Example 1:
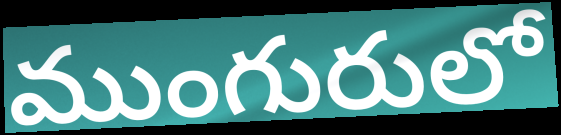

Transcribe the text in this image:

ముంగురులో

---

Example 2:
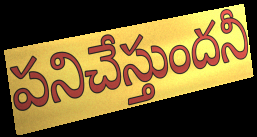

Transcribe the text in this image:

పనిచేస్తుందనీ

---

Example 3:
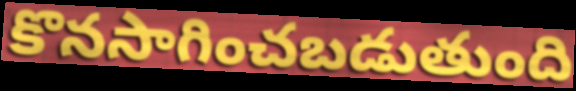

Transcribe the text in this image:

కొనసాగించబడుతుంది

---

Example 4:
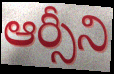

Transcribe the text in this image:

ఆర్సీని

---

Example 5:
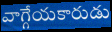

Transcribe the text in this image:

వాగ్గేయకారుడు